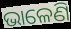
ଭାଳେଣି